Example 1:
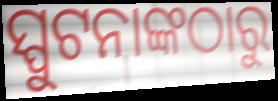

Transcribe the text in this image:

ସ୍ପୁଟନାଙ୍କଠାରୁ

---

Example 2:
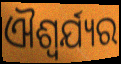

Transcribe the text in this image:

ଐଶ୍ୱର୍ଯ୍ୟର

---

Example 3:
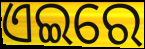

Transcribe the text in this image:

ଏଇରେ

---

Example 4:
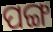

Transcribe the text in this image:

ପଙ୍ଗ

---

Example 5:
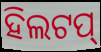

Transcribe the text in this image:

ହିଲଟପ୍